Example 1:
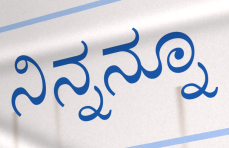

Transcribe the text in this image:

ನಿನ್ನನ್ನೂ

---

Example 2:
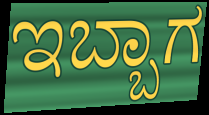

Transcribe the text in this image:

ಇಬ್ಬಾಗ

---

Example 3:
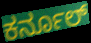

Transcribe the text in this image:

ಕರ್ನೂಲ್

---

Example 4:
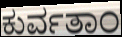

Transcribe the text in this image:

ಕುರ್ವತಾಂ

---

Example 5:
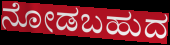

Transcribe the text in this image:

ನೋಡಬಹುದ